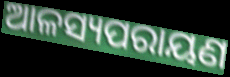
ଆଳସ୍ୟପରାୟଣ